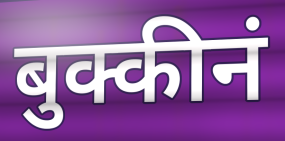
बुक्कीनं